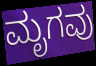
ಮೃಗವು